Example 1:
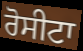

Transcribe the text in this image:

ਰੋਸੀਟਾ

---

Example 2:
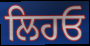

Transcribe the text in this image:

ਲਿਹਓ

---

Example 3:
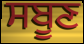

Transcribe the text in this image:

ਸਬੂਣ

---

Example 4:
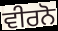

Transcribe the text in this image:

ਵੀਰਨੋ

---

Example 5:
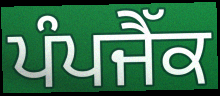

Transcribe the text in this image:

ਪੰਪਜੈੱਕ